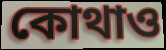
কোথাও